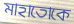
মাহাতোকে